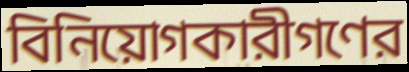
বিনিয়োগকারীগণের